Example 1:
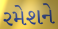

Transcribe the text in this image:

રમેશને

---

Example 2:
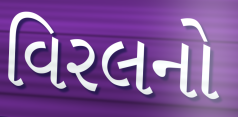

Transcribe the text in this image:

વિરલનો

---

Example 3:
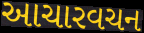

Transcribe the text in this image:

આચારવચન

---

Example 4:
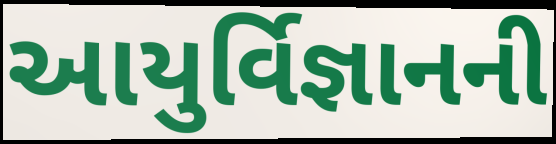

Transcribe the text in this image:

આયુર્વિજ્ઞાનની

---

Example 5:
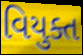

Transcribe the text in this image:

વિયુક્ત